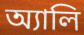
অ্যালি